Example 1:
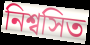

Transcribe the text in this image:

নিশ্বসিত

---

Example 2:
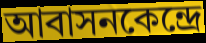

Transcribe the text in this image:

আবাসনকেন্দ্রে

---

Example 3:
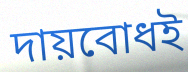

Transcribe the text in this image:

দায়বোধই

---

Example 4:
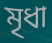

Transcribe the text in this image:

মৃধা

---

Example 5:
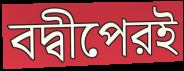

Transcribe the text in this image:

বদ্বীপেরই